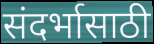
संदर्भासाठी